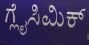
ಗ್ಲೈಸಿಮಿಕ್